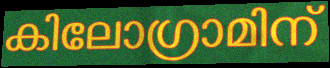
കിലോഗ്രാമിന്